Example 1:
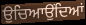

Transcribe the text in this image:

ਉਚਿਆਉਂਦਿਆਂ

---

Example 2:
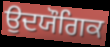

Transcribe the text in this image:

ਉਦਯੌਗਿਕ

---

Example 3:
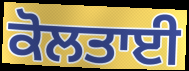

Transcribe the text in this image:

ਕੋਲਤਾਈ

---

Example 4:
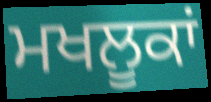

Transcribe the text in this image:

ਮਖਲੂਕਾਂ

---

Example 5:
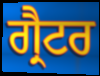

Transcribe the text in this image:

ਗ੍ਰੈਟਰ